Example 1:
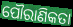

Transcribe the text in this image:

ପୌରାଣିକତା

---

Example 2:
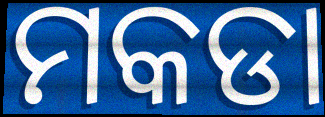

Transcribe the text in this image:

ମକଡା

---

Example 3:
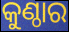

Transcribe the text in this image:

କୁଣ୍ଠାର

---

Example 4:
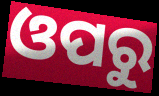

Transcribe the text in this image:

ଓପରୁ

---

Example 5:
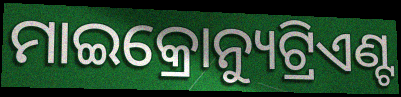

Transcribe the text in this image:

ମାଇକ୍ରୋନ୍ୟୁଟ୍ରିଏଣ୍ଟ